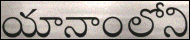
యానాంలోని